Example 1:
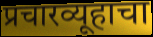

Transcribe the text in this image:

प्रचारव्यूहाचा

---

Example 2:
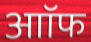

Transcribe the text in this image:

आॉफ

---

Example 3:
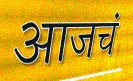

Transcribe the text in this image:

आजचं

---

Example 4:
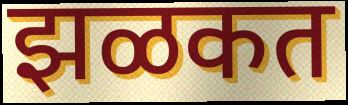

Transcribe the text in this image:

झळकत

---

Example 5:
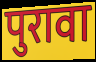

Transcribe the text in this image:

पुरावा